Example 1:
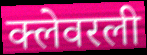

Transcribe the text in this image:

क्लेवरली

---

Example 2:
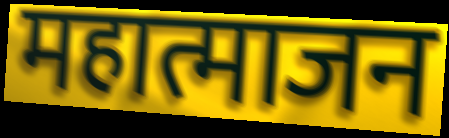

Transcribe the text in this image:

महात्माजन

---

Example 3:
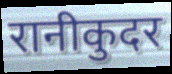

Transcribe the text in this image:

रानीकुदर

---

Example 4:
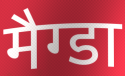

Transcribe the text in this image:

मैग्डा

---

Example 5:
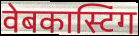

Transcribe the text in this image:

वेबकास्टिंग